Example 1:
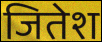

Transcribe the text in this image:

जितेश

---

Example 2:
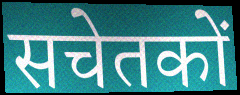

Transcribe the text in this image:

सचेतकों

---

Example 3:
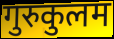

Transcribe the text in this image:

गुरुकुलम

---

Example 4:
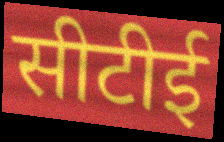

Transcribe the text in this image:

सीटीई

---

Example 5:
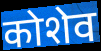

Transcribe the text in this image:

कोशेव